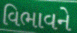
વિભાવને